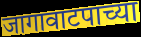
जागावाटपाच्या